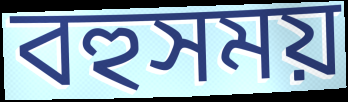
বহুসময়